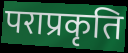
पराप्रकृति